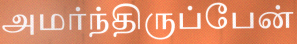
அமர்ந்திருப்பேன்